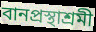
বানপ্রস্থাশ্রমী